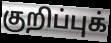
குறிப்புக்